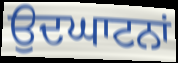
ਉਦਘਾਟਨਾਂ